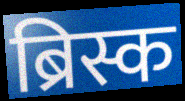
ब्रिस्क